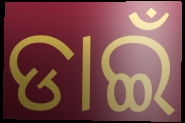
ଡାଇଁ